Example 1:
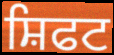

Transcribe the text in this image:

ਸ਼ਿਫਟ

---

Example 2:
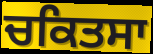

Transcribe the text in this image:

ਚਕਿਤਸਾ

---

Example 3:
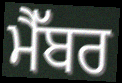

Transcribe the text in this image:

ਮੈੱਬਰ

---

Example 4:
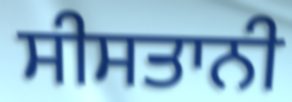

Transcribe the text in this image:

ਸੀਸਤਾਨੀ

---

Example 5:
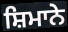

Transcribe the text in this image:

ਸ਼ਿਮਾਨੇ